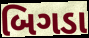
બિગડા